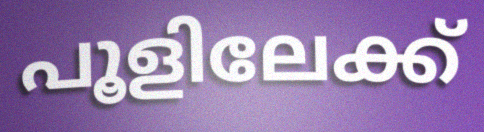
പൂളിലേക്ക്